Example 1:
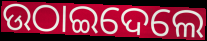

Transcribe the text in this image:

ଉଠାଇଦେଲେ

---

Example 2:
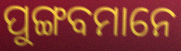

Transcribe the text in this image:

ପୁଙ୍ଗବମାନେ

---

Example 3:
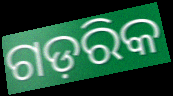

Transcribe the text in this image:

ଗଡ଼ରିକ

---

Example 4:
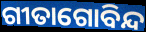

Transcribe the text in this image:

ଗୀତାଗୋବିନ୍ଦ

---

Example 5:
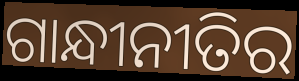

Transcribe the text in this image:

ଗାନ୍ଧୀନୀତିର